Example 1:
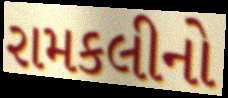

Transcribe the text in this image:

રામકલીનો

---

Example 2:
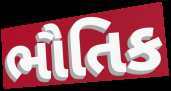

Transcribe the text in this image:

ભૌતિક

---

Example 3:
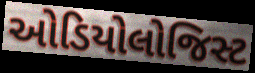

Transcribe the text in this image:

ઓડિયોલોજિસ્ટ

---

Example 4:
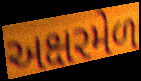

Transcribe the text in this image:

અક્ષરમેળ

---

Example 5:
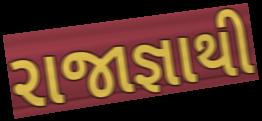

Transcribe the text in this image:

રાજાજ્ઞાથી